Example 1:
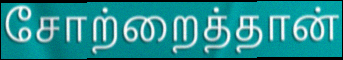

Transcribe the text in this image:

சோற்றைத்தான்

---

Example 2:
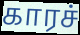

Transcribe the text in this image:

காரச்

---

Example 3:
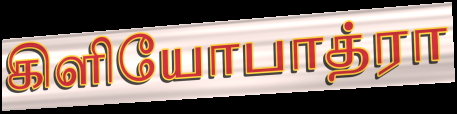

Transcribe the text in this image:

கிளியோபாத்ரா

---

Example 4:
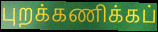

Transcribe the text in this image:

புறக்கணிக்கப்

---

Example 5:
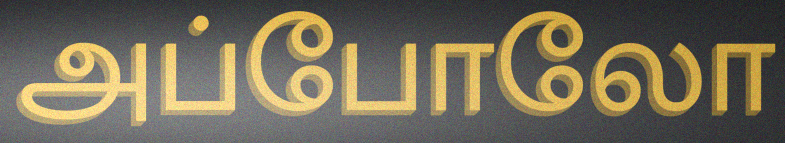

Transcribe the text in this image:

அப்போலோ